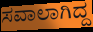
ಸವಾಲಾಗಿದ್ದ